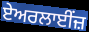
ਏਅਰਲਾਈਂਜ਼